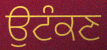
ਉਟੰਕਣ